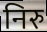
निरु